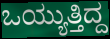
ಒಯ್ಯುತ್ತಿದ್ದ